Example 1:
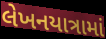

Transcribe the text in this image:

લેખનયાત્રામાં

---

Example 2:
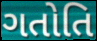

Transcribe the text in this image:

ગતોતિ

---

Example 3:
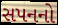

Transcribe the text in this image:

સપનનો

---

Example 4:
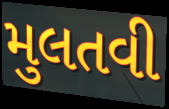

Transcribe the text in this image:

મુલતવી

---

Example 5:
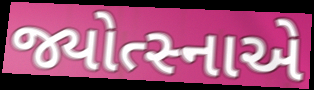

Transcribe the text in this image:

જ્યોત્સ્નાએ